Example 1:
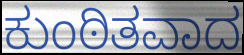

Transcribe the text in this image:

ಕುಂಠಿತವಾದ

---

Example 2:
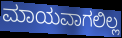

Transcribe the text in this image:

ಮಾಯವಾಗಲಿಲ್ಲ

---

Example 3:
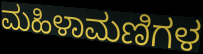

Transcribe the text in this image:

ಮಹಿಳಾಮಣಿಗಳ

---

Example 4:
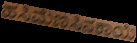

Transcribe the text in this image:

ಹಸಿಮೆಣಸಿನಕಾಯಿ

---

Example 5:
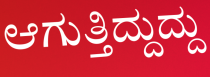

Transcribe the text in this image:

ಆಗುತ್ತಿದ್ದುದ್ದು